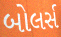
બોલર્સ